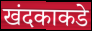
खंदकाकडे